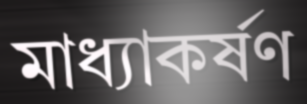
মাধ্যাকর্ষণ